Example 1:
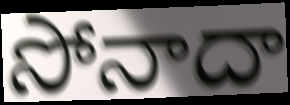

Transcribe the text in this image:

సోనాదా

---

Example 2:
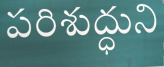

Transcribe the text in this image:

పరిశుద్ధుని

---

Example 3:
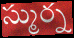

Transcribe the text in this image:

స్ముర్న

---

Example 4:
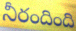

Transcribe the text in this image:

నీరందింది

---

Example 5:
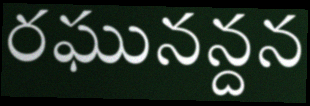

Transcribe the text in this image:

రఘునన్దన